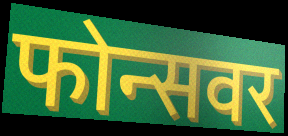
फोन्सवर